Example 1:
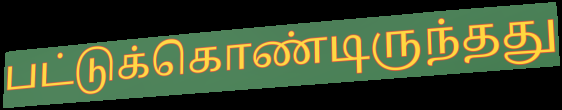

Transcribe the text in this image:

பட்டுக்கொண்டிருந்தது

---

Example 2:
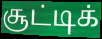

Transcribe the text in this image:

சூட்டிக்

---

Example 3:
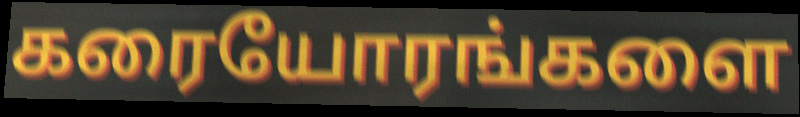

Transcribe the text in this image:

கரையோரங்களை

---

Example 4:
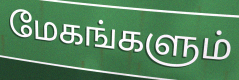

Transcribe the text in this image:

மேகங்களும்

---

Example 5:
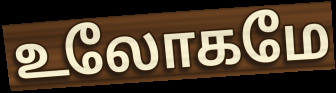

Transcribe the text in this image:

உலோகமே